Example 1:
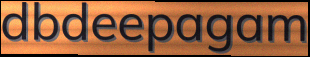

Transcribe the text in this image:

dbdeepagam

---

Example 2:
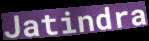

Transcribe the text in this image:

Jatindra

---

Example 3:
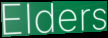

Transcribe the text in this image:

Elders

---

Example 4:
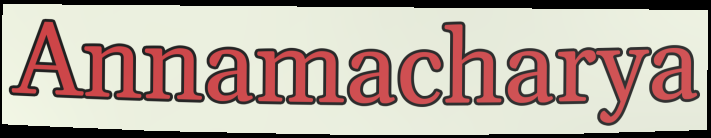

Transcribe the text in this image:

Annamacharya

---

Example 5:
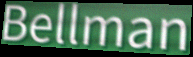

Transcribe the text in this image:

Bellman